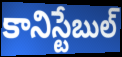
కానిస్టేబుల్